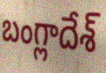
బంగ్లాదేశ్